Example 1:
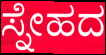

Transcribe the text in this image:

ಸ್ನೇಹದ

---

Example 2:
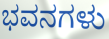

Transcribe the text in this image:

ಭವನಗಳು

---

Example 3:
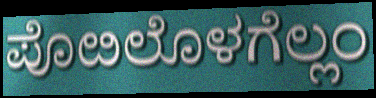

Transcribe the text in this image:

ಪೊೞಲೊಳಗೆಲ್ಲಂ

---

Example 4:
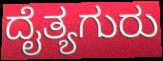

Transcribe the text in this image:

ದೈತ್ಯಗುರು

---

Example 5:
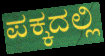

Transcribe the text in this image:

ಪಕ್ಕದಲ್ಲಿ